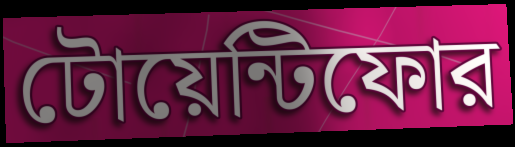
টোয়েন্টিফোর